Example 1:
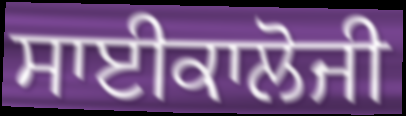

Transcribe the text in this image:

ਸਾਈਕਾਲੋਜੀ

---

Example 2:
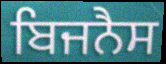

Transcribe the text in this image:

ਬਿਜਨੈਸ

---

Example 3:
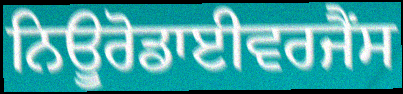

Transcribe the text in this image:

ਨਿਊਰੋਡਾਈਵਰਜੈਂਸ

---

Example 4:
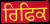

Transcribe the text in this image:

ਰਿਫਿਕ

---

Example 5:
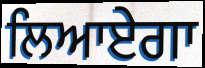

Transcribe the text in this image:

ਲਿਆਏਗਾ